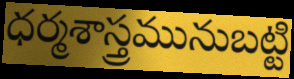
ధర్మశాస్త్రమునుబట్టి